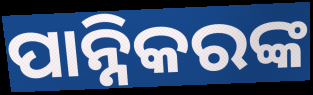
ପାନ୍ନିକରଙ୍କ